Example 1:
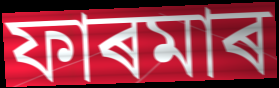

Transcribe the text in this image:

ফাৰমাৰ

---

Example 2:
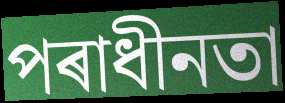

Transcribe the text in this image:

পৰাধীনতা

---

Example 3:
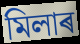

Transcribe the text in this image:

মিলাৰ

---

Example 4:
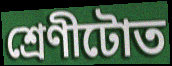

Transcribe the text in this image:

শ্ৰেণীটোত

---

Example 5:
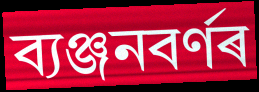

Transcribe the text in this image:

ব্যঞ্জনবৰ্ণৰ